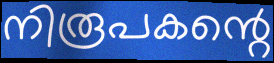
നിരൂപകന്റെ